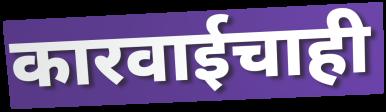
कारवाईचाही